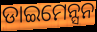
ଡାଇମେନ୍ସନ